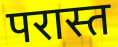
परास्त